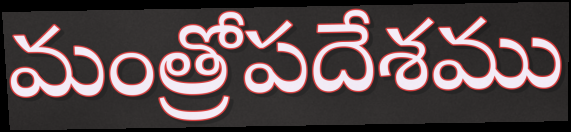
మంత్రోపదేశము